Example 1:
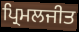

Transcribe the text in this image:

ਪ੍ਰਿਮਲਜੀਤ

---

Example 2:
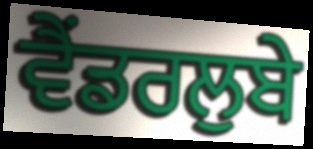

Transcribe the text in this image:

ਵੈਂਡਰਲੁਬੇ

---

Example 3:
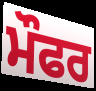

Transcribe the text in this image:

ਮੌਫਰ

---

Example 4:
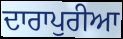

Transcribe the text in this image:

ਦਾਰਾਪੁਰੀਆ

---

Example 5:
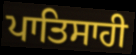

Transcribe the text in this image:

ਪਾਤਿਸਾਹੀ